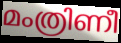
മംത്രിണീ